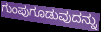
ಗುಂಪುಗೂಡುವುದನ್ನು